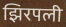
झिरपली